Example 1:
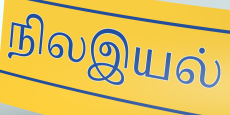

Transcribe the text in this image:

நிலஇயல்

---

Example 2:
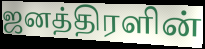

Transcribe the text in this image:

ஜனத்திரளின்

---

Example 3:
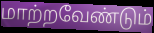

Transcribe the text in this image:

மாற்றவேண்டும்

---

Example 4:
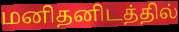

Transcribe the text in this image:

மனிதனிடத்தில்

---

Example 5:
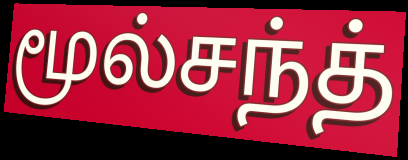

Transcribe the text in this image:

மூல்சந்த்